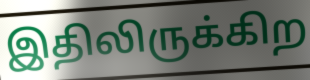
இதிலிருக்கிற